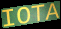
IOTA